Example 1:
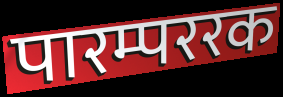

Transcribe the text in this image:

पारम्पररक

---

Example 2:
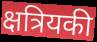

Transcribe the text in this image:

क्षत्रियकी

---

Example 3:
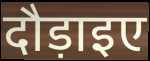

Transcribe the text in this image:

दौड़ाइए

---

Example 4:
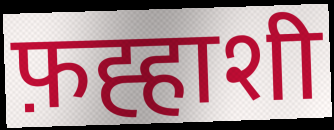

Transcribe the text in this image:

फ़ह्हाशी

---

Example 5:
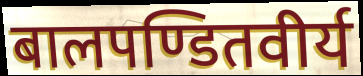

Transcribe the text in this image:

बालपण्डितवीर्य